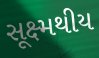
સૂક્ષ્મથીય